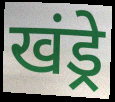
खंड्रे